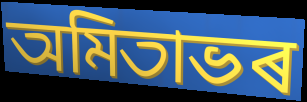
অমিতাভৰ